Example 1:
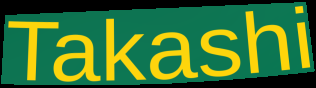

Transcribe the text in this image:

Takashi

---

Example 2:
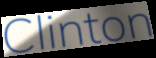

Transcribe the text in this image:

Clinton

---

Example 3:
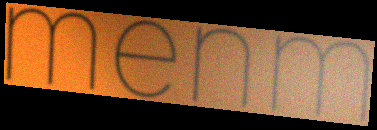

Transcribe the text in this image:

menm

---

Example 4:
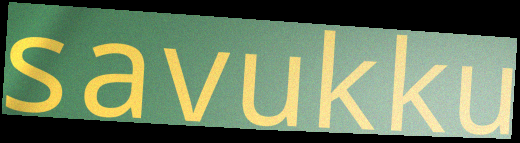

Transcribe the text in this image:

savukku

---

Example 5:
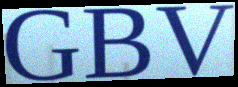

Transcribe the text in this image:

GBV